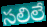
సలిలే